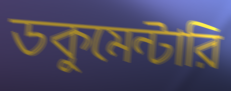
ডকুমেন্টারি